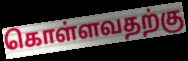
கொள்ளவதற்கு